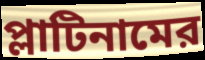
প্লাটিনামের